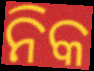
ନିକ